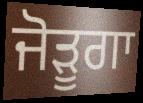
ਜੋੜੂਗਾ